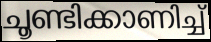
ചൂണ്ടിക്കാണിച്ച്